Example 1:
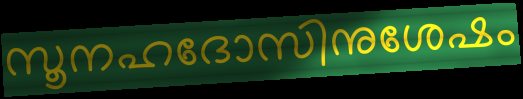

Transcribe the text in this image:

സൂനഹദോസിനുശേഷം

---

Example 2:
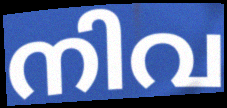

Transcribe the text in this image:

നിവ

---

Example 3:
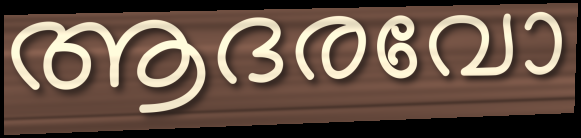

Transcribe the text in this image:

ആദരവോ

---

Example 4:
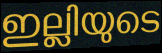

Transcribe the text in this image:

ഇല്ലിയുടെ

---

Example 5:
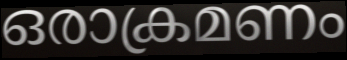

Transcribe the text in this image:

ഒരാക്രമണം